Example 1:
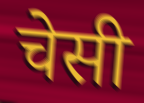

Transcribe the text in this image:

चेसी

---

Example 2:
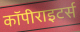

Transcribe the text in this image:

कॉपीराइटर्स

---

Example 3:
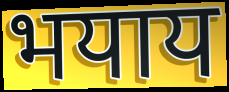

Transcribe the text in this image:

भयाय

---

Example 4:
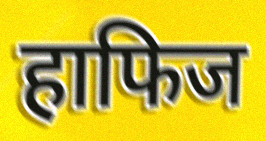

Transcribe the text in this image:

हाफिज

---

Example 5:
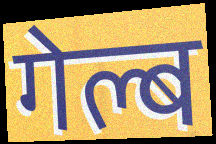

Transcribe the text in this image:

गेल्ब